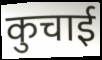
कुचाई